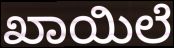
ಖಾಯಿಲೆ